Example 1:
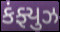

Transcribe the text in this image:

કંફ્યુઝ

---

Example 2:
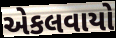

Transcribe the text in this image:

એકલવાયો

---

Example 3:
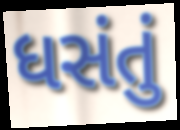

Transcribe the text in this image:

ધસંતું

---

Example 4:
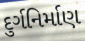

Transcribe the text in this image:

દુર્ગનિર્માણ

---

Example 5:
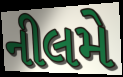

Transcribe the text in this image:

નીલમે